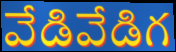
వేడివేడిగ